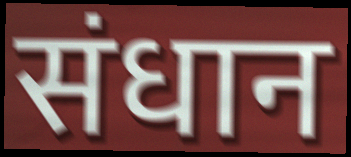
संधान